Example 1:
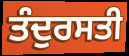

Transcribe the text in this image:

ਤੰਦੁਰਸਤੀ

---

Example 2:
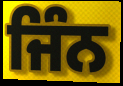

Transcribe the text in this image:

ਜਿੰਨ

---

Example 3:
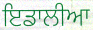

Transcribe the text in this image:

ਇਡਾਲੀਆ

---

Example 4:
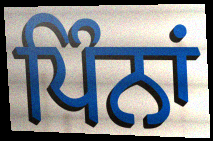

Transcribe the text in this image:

ਪਿੰਨਾਂ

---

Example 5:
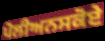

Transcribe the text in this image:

ਪੋਲੀਅਨਸਕੋਏ